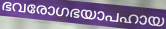
ഭവരോഗഭയാപഹായ